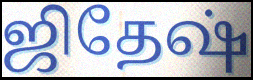
ஜிதேஷ்